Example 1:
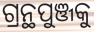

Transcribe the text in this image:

ଗ୍ରନ୍ଥପୁଞ୍ଜକୁ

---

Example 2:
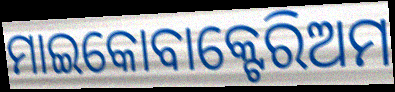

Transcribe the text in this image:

ମାଇକୋବାକ୍ଟେରିଅମ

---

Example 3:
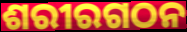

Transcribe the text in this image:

ଶରୀରଗଠନ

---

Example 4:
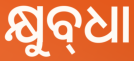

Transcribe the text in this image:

କ୍ଷୁବ୍‌ଧା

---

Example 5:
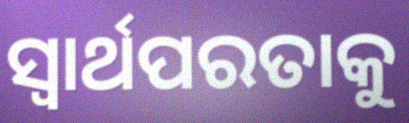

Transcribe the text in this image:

ସ୍ଵାର୍ଥପରତାକୁ